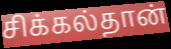
சிக்கல்தான்